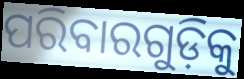
ପରିବାରଗୁଡ଼ିକୁ